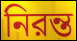
নিরন্ত